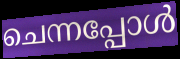
ചെന്നപ്പോൾ